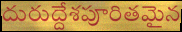
దురుద్దేశపూరితమైన